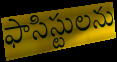
ఫాసిస్టులను